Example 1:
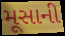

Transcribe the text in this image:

મૂસાની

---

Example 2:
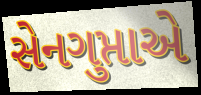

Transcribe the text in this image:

સેનગુપ્તાએ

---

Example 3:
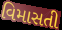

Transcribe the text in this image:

વિમાસતી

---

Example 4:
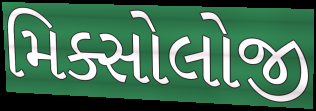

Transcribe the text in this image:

મિક્સોલોજી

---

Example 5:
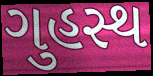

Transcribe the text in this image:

ગુહસ્થ